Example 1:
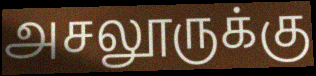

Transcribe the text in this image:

அசலூருக்கு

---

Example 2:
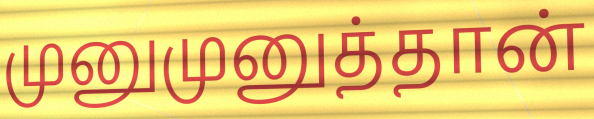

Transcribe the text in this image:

முனுமுனுத்தான்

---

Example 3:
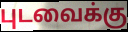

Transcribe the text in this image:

புடவைக்கு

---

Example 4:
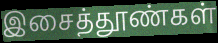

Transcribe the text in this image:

இசைத்தூண்கள்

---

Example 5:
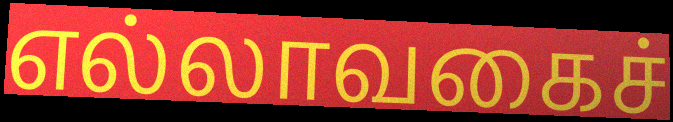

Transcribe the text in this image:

எல்லாவகைச்